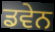
ਡਵੇਨ